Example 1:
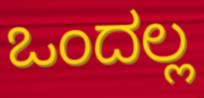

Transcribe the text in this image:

ಒಂದಲ್ಲ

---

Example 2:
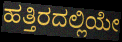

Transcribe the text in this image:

ಹತ್ತಿರದಲ್ಲಿಯೇ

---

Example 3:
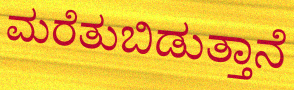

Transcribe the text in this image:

ಮರೆತುಬಿಡುತ್ತಾನೆ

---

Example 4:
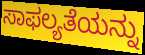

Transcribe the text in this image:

ಸಾಫಲ್ಯತೆಯನ್ನು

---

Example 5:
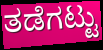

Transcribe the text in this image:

ತಡೆಗಟ್ಟು